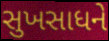
સુખસાધને